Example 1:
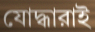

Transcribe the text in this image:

যোদ্ধারাই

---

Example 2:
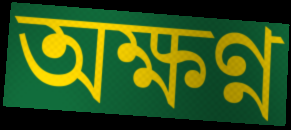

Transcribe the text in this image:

অক্ষণ্ন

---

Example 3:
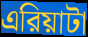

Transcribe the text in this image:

এরিয়াটা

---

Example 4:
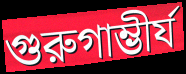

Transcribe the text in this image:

গুরুগাম্ভীর্য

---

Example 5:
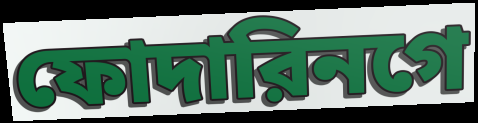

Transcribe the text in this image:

ফোদারিনগে